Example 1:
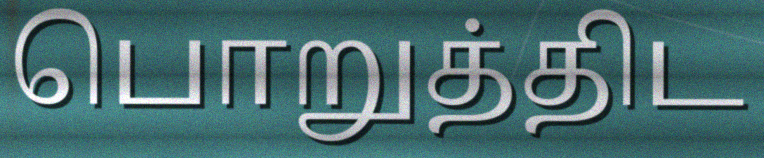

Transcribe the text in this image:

பொறுத்திட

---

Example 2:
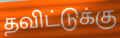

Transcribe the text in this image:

தவிட்டுக்கு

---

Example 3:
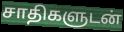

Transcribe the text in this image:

சாதிகளுடன்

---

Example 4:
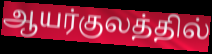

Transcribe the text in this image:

ஆயர்குலத்தில்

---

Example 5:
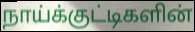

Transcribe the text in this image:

நாய்க்குட்டிகளின்